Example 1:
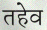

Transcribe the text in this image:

तहेव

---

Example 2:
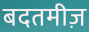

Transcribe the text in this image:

बदतमीज़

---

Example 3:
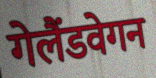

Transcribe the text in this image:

गेलैंडवेगन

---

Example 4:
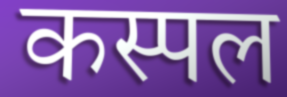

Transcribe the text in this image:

कस्पल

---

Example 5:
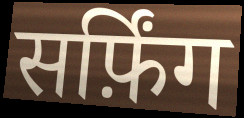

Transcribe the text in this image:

सर्फ़िंग